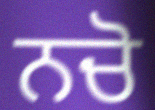
ਨਚੋ